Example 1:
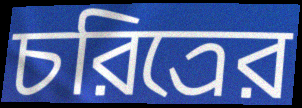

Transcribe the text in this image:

চরিত্রের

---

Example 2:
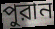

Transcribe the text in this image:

পুরান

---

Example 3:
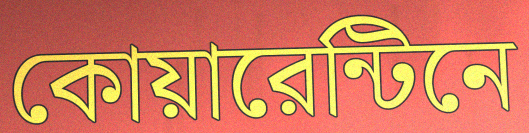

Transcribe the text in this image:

কোয়ারেন্টিনে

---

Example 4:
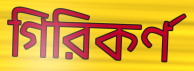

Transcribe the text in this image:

গিরিকর্ণ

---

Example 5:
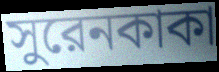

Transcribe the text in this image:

সুরেনকাকা